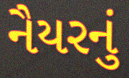
નૈયરનું